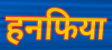
हनफिया